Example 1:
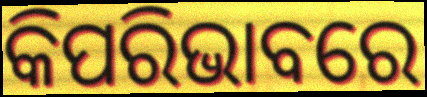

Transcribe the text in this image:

କିପରିଭାବରେ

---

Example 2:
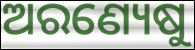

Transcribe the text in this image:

ଅରଣ୍ୟେଷୁ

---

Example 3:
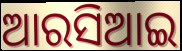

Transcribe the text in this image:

ଆରସିଆଇ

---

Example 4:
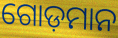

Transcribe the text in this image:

ଗୋଡ଼ମାନ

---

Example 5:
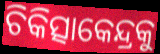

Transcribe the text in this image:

ଚିକିତ୍ସାକେନ୍ଦ୍ରକୁ